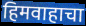
हिमवाहाचा